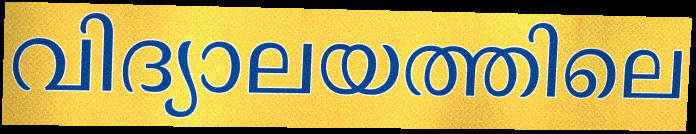
വിദ്യാലയത്തിലെ